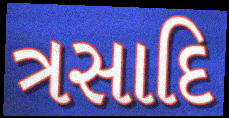
ત્રસાદિ